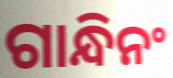
ଗାନ୍ଧିନଂ